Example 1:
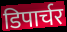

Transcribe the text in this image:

डिपार्चर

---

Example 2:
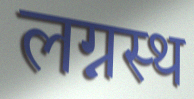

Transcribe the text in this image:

लग्नस्थ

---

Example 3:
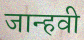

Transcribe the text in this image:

जान्हवी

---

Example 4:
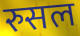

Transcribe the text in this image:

रुसल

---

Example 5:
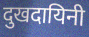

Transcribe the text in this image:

दुखदायिनी